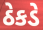
ઠેકડે